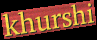
khurshi